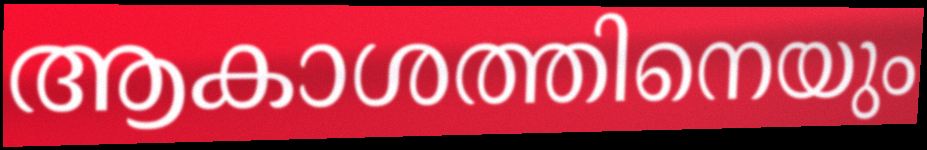
ആകാശത്തിനെയും